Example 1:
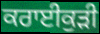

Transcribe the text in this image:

ਕਰਾਈਕੁੜੀ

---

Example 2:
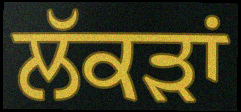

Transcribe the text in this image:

ਲੱਕੜਾਂ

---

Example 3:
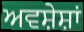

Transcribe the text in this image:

ਅਵਸ਼ੇਸ਼ਾਂ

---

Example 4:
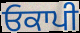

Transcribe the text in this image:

ਓਕਾਪੀ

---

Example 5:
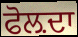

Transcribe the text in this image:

ਫੋਲ਼ਦਾ